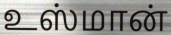
உஸ்மான்